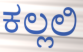
ಕಲ್ಲಲಿ